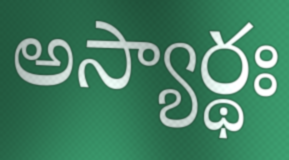
అస్యార్థః